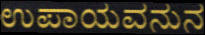
ಉಪಾಯವನುನ